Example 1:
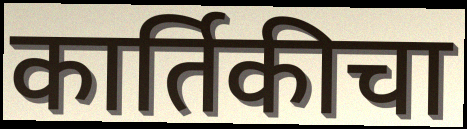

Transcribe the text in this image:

कार्तिकीचा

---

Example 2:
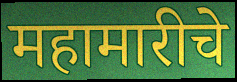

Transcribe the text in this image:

महामारीचे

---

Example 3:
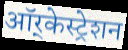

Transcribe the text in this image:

ऑर्केस्ट्रेशन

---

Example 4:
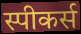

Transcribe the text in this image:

स्पीकर्स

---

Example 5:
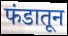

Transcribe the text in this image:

फंडातून